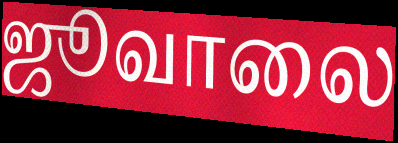
ஜூவாலை